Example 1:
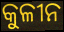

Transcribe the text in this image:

କୁଳୀନ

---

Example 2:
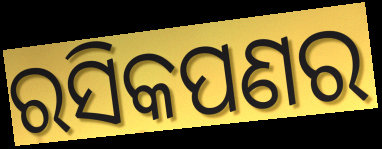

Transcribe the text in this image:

ରସିକପଣର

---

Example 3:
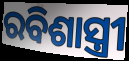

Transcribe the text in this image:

ରବିଶାସ୍ତ୍ରୀ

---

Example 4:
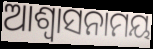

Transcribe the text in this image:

ଆଶ୍ୱାସନାମୟ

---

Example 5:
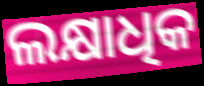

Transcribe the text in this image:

ଲକ୍ଷାଧିକ